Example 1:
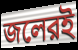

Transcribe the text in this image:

জলেরই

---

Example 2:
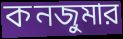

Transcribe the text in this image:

কনজুমার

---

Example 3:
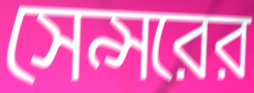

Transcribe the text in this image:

সেন্সরের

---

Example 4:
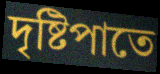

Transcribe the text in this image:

দৃষ্টিপাতে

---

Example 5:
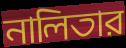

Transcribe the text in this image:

নালিতার